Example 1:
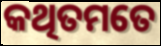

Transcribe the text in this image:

କଥିତମତେ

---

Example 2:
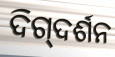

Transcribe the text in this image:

ଦିଗ୍‌ଦର୍ଶନ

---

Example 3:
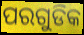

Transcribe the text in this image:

ପରଗୁଡିକ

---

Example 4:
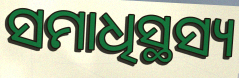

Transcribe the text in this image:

ସମାଧିସ୍ଥସ୍ୟ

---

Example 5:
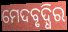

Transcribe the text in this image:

ମେଦବୃଦ୍ଧିର